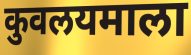
कुवलयमाला